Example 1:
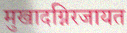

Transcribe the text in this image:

मुखादग्निरजायत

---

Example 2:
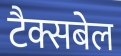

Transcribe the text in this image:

टैक्सबेल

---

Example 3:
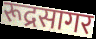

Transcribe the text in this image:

रूद्रसागर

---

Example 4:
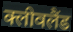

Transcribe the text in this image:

क्लीवलैंड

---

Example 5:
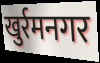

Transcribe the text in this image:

खुर्रमनगर